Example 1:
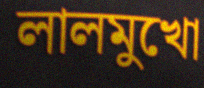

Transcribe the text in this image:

লালমুখো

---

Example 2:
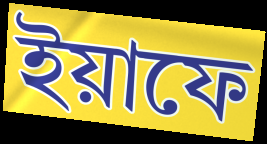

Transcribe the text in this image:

ইয়াফে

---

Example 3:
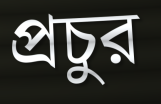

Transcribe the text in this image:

প্রচুর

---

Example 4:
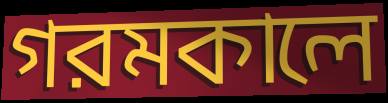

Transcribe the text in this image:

গরমকালে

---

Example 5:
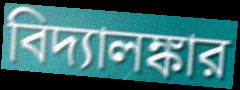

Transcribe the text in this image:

বিদ্যালঙ্কার